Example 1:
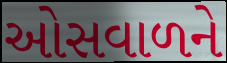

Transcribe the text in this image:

ઓસવાળને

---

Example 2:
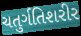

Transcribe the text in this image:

ચતુર્ગતિશરીર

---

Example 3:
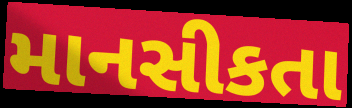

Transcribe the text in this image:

માનસીકતા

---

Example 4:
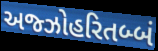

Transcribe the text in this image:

અજ્ઝોહરિતબ્બં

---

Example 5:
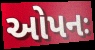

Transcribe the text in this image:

ઓપનઃ